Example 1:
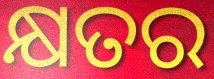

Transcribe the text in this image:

କ୍ଷତର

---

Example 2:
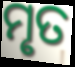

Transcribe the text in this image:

ମୃତ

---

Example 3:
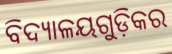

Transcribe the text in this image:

ବିଦ୍ୟାଳୟଗୁଡ଼ିକର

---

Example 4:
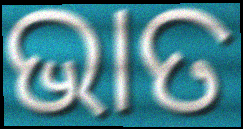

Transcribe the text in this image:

ଭାତ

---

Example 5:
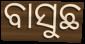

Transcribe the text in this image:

ବାସୁଛ